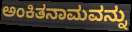
ಅಂಕಿತನಾಮವನ್ನು